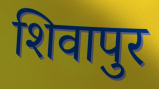
शिवापुर